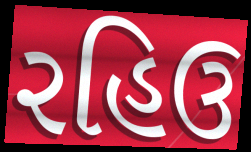
રહિઉ